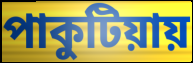
পাকুটিয়ায়